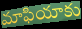
మాఫియాకు